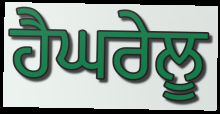
ਹੈਘਰੇਲੂ